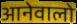
आनेवालो